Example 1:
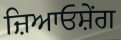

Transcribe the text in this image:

ਜ਼ਿਆਓਸ਼ੇਂਗ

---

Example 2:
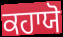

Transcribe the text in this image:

ਕਹਾਯੋ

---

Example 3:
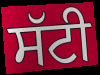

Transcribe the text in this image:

ਸੱਟੀ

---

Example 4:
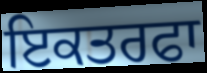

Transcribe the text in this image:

ਇਕਤਰਫਾ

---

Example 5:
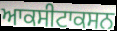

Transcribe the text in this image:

ਆਕਸੀਟਾਕਸਨ